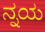
ನ್ನಯ